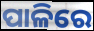
ପାଳିରେ